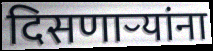
दिसणाऱ्यांना